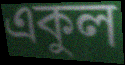
একুল